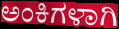
ಅಂಕಿಗಳಾಗಿ